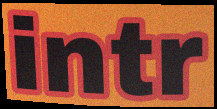
intr